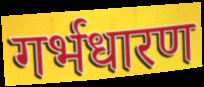
गर्भधारण